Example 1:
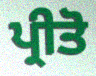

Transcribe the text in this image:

ਪ੍ਰੀਤੋ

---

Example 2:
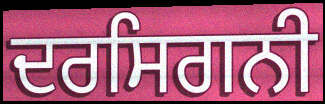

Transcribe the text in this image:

ਦਰਸਿਗਨੀ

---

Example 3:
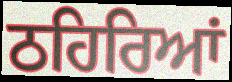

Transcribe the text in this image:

ਠਹਿਰਿਆਂ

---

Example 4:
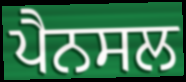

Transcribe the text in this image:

ਪੈਨਸਲ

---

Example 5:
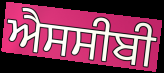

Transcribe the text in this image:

ਐਸਸੀਬੀ